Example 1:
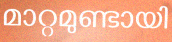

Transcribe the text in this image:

മാറ്റമുണ്ടായി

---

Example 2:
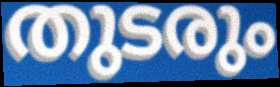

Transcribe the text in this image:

തുടരും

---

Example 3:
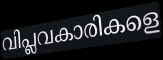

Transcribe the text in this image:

വിപ്ലവകാരികളെ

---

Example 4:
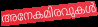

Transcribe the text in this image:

അനേകമിരവുകൾ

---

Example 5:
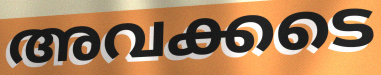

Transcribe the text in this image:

അവക്കടെ